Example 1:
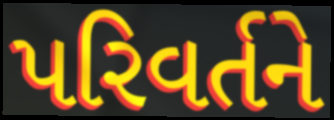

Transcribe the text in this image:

પરિવર્તને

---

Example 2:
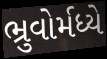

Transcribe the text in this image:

ભ્રુવોર્મધ્યે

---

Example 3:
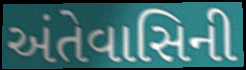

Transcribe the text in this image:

અંતેવાસિની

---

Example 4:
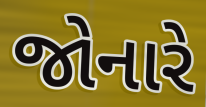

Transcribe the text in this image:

જોનારે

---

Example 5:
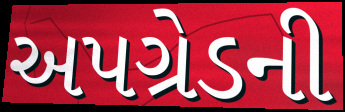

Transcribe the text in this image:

અપગ્રેડની